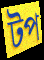
টপ